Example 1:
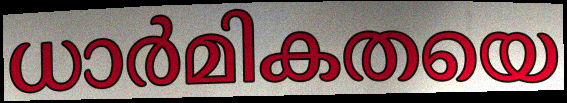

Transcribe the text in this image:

ധാർമികതയെ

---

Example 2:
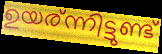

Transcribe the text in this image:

ഉയര്ന്നിട്ടുണ്ട്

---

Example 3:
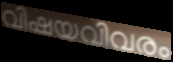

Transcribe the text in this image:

വിഷയവിവരം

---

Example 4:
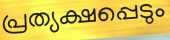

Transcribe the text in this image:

പ്രത്യക്ഷപ്പെടും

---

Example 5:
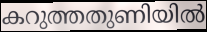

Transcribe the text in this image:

കറുത്തതുണിയിൽ